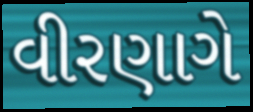
વીરણાગે